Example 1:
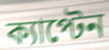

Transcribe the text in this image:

ক্যাপ্টেন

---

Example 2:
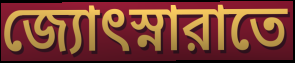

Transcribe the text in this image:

জ্যোৎস্নারাতে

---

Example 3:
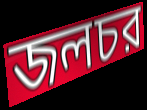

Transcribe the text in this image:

জলচর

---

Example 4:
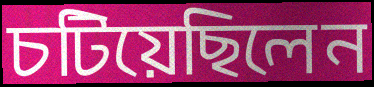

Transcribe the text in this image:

চটিয়েছিলেন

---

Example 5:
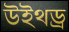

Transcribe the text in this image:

উইথড্র